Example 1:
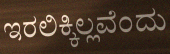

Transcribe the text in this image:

ಇರಲಿಕ್ಕಿಲ್ಲವೆಂದು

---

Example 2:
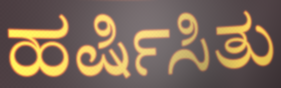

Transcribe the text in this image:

ಹರ್ಷಿಸಿತು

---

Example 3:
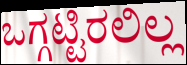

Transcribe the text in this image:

ಒಗ್ಗಟ್ಟಿರಲಿಲ್ಲ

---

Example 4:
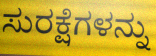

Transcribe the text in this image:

ಸುರಕ್ಷೆಗಳನ್ನು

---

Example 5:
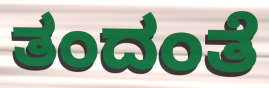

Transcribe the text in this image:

ತಂದಂತೆ